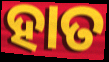
ହାତ